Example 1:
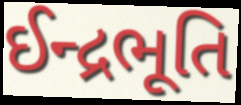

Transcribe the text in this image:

ઈન્દ્રભૂતિ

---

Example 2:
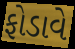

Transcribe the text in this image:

ફોડાવે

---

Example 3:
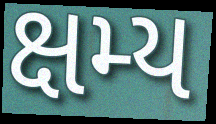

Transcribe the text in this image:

ક્ષમ્ય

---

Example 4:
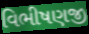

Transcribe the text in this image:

વિભીષણજી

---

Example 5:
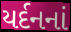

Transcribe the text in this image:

યર્દનનાં